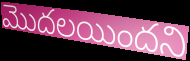
మొదలయిందని